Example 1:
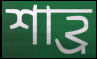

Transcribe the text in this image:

শাহ্র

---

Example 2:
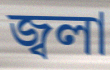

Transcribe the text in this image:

জ্বলা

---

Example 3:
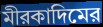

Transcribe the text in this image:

মীরকাদিমের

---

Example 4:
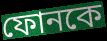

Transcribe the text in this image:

ফোনকে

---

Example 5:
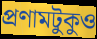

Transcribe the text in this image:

প্রণামটুকুও